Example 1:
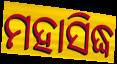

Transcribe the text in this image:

ମହାସିଦ୍ଧ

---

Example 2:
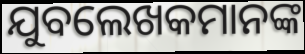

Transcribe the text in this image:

ଯୁବଲେଖକମାନଙ୍କ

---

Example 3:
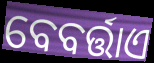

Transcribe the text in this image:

ବେବର୍ତ୍ତାଏ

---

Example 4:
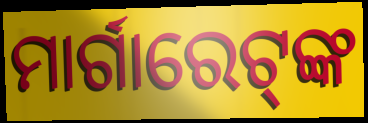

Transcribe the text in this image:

ମାର୍ଗାରେଟ୍‍ଙ୍କ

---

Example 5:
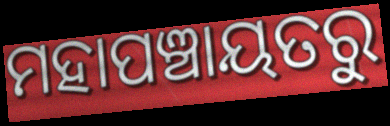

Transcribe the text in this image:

ମହାପଞ୍ଚାୟତରୁ